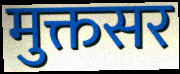
मुक्तसर